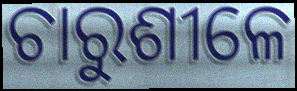
ଚାରୁଶୀଳେ